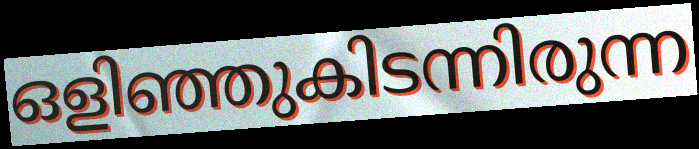
ഒളിഞ്ഞുകിടന്നിരുന്ന